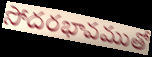
సోదరభావముతో